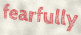
fearfully